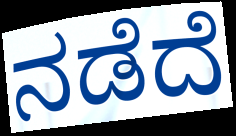
ನಡೆದೆ